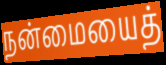
நன்மையைத்